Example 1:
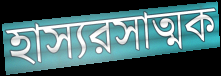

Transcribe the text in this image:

হাস্যরসাত্মক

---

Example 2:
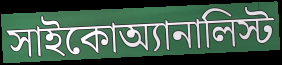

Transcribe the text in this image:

সাইকোঅ্যানালিস্ট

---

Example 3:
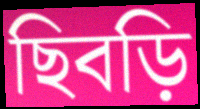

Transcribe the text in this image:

ছিবড়ি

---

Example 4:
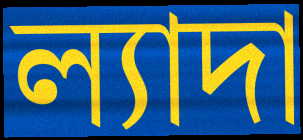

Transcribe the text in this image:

ল্যাদা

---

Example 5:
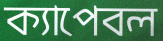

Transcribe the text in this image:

ক্যাপেবল